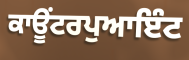
ਕਾਊਂਟਰਪੁਆਇੰਟ